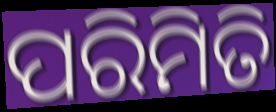
ପରିମିତି